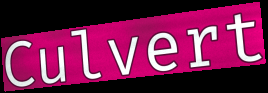
Culvert